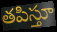
తపిస్తూ